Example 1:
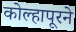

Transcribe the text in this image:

कोल्हापूरने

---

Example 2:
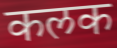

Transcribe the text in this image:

कलक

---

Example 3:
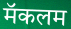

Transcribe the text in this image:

मॅकलम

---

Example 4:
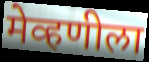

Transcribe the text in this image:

मेव्हणीला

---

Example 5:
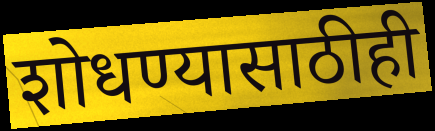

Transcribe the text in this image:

शोधण्यासाठीही